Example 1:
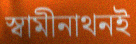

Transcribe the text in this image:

স্বামীনাথনই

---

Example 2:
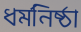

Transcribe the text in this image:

ধর্মনিষ্ঠা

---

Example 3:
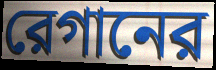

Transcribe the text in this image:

রেগানের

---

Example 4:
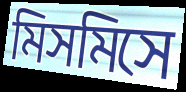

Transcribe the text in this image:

মিসমিসে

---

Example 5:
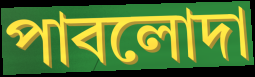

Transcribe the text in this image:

পাবলোদা